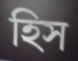
হিস